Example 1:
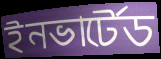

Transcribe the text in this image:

ইনভার্টেড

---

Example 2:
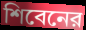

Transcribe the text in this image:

শিবেনের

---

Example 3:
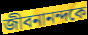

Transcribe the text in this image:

জীবনানন্দকে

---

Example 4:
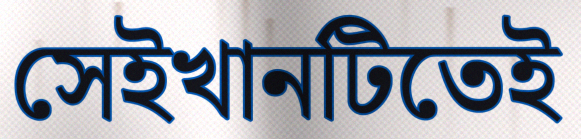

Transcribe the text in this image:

সেইখানটিতেই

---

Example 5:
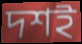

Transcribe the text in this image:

দশই